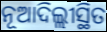
ନୂଆଦିଲ୍ଲୀସ୍ଥିତ